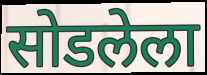
सोडलेला